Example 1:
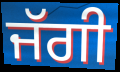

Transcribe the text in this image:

ਜੱਗੀ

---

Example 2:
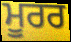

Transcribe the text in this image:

ਮੂਰਰ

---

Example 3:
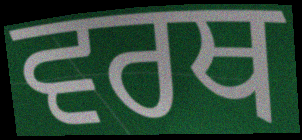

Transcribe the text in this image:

ਵਰਥ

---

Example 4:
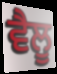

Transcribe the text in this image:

ਵੈਲੂ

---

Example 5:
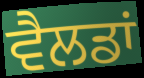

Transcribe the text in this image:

ਵੈਲਡਾਂ